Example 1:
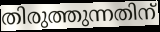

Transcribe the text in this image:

തിരുത്തുന്നതിന്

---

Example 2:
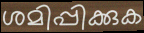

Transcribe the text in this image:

ശമിപ്പിക്കുക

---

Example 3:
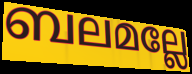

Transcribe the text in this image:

ബലമല്ലേ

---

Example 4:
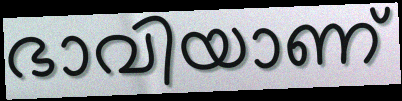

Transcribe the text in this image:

ഭാവിയാണ്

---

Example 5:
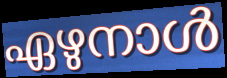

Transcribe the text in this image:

ഏഴുനാൾ